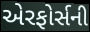
એરફોર્સની